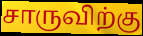
சாருவிற்கு